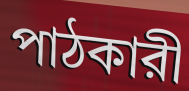
পাঠকারী